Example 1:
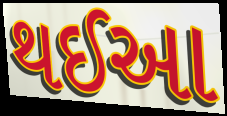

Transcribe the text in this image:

થઈઆ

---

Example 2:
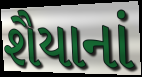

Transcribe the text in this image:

શૈયાનાં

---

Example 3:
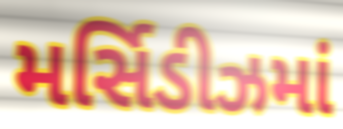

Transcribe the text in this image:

મર્સિડીઝમાં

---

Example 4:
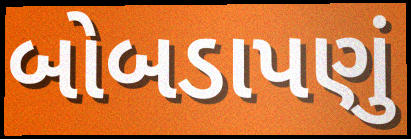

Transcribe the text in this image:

બોબડાપણું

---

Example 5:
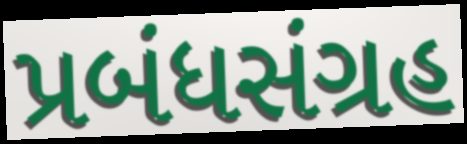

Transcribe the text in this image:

પ્રબંધસંગ્રહ